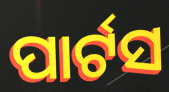
ପାର୍ଟସ